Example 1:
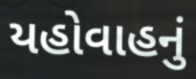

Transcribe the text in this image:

યહોવાહનું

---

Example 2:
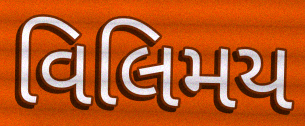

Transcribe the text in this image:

વિલિમય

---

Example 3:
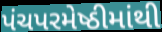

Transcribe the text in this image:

પંચપરમેષ્ઠીમાંથી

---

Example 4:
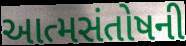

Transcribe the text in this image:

આત્મસંતોષની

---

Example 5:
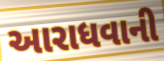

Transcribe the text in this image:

આરાધવાની